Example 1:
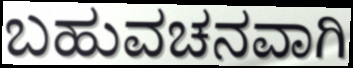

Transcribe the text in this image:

ಬಹುವಚನವಾಗಿ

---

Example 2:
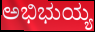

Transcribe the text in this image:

ಅಭಿಭುಯ್ಯ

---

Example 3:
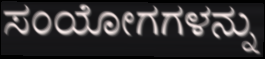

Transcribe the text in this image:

ಸಂಯೋಗಗಳನ್ನು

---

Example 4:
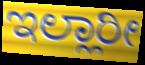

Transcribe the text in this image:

ಇಲ್ಲಾರೀ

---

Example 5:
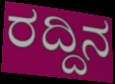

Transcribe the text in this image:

ರದ್ದಿನ